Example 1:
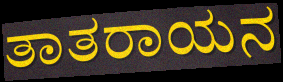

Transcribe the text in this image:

ತಾತರಾಯನ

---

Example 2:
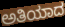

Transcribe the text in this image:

ಅತಿಯಾದ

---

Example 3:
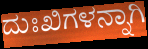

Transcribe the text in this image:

ದುಃಖಿಗಳನ್ನಾಗಿ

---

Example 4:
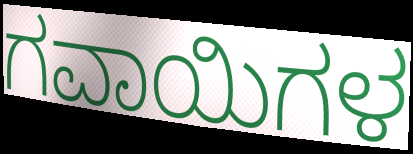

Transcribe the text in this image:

ಗವಾಯಿಗಳ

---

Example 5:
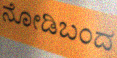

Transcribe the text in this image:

ನೋಡಿಬಂದ